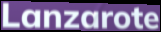
Lanzarote